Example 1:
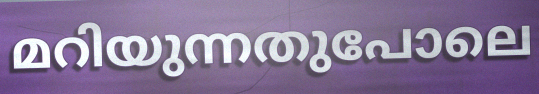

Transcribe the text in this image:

മറിയുന്നതുപോലെ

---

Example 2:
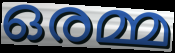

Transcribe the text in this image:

ഒരമ്മ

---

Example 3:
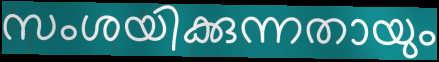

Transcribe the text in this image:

സംശയിക്കുന്നതായും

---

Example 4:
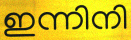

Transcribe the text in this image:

ഇന്നിനി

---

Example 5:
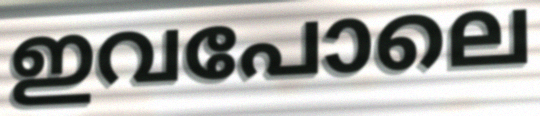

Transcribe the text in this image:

ഇവപോലെ